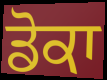
ਡੋਕਾ